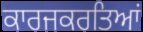
ਕਾਰਜਕਰਤਿਆਂ